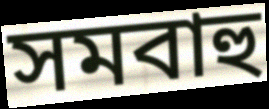
সমবাহু